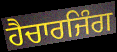
ਹੈਚਾਰਜਿੰਗ